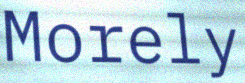
Morely